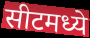
सीटमध्ये